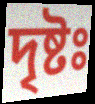
দৃষ্টঃ